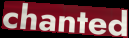
chanted